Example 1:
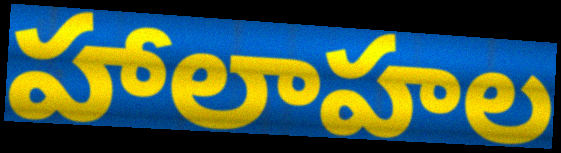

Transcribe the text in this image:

హాలాహల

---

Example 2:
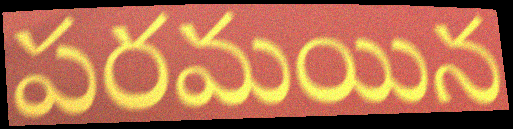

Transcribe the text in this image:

పరమయిన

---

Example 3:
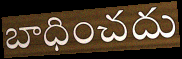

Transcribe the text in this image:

బాధించదు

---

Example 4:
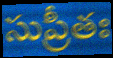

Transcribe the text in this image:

సుప్రీతః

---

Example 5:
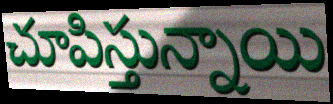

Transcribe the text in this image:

చూపిస్తున్నాయి